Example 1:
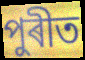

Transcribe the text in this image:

পুৰীত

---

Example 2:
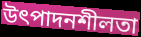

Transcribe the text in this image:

উৎপাদনশীলতা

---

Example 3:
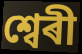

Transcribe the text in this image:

শ্বেৰী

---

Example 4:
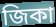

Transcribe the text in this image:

জিকা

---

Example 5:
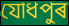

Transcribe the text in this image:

যোধপুৰ